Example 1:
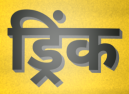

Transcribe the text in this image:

ड्रिंक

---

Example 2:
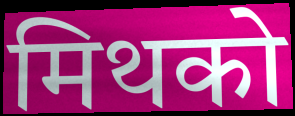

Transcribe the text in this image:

मिथको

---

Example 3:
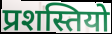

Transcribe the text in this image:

प्रशस्तियो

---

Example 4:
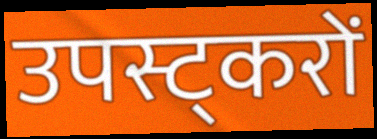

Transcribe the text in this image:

उपस्ट्करों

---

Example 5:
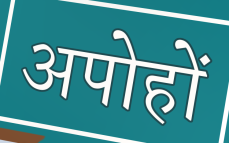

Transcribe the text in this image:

अपोहों